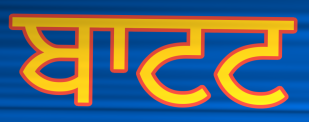
ਬਾਟਟ